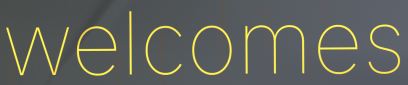
welcomes